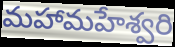
మహామహేశ్వరి